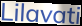
Lilavati